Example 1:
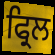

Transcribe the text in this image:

ਫ੍ਰਿਲ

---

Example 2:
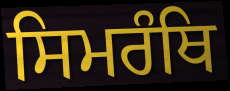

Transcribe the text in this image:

ਸਿਮਰੰਥਿ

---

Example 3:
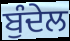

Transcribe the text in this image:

ਬੁੰਦੇਲ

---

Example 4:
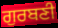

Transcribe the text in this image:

ਗੁਰਬਣੀ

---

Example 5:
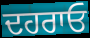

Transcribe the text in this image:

ਦਹਰਾਓ